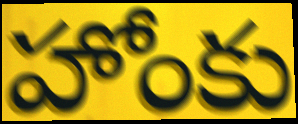
హోంకు